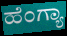
ಹೆಂಗ್ಯಾ